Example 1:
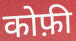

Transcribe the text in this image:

कोफ़ी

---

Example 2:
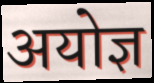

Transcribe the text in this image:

अयोज्ञ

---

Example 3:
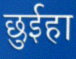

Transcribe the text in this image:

छुईहा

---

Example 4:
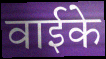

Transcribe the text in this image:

वाईके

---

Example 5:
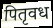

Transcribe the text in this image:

पितृवध